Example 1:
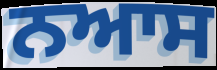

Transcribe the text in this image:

ਨਆਸ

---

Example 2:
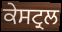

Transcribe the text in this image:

ਕੇਸਟ੍ਰਲ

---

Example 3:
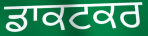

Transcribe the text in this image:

ਡਾਕਟਕਰ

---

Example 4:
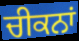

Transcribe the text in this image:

ਚੀਕਨਾਂ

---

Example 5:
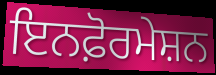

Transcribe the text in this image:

ਇਨਫ਼ੋਰਮੇਸ਼ਨ